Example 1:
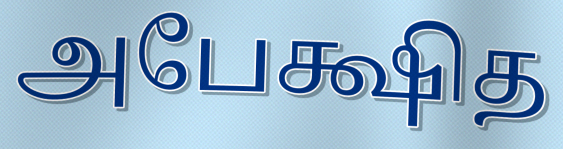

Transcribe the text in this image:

அபேக்ஷித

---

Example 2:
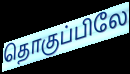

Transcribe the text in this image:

தொகுப்பிலே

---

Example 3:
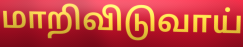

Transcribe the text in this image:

மாறிவிடுவாய்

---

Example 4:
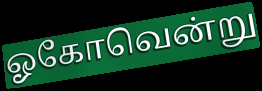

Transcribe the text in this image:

ஓகோவென்று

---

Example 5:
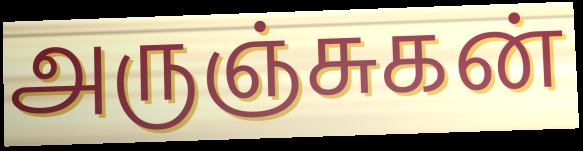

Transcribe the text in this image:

அருஞ்சுகன்